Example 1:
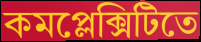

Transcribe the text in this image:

কমপ্লেক্সিটিতে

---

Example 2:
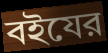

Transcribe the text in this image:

বইযের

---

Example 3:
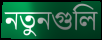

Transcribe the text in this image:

নতুনগুলি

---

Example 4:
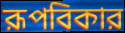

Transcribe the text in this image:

রূপবিকার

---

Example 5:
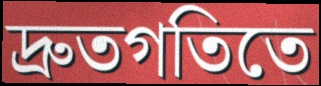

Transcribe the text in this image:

দ্রুতগতিতে